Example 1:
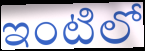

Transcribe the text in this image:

ఇంటిలో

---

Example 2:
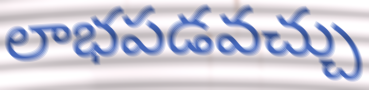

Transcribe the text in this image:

లాభపడవచ్చు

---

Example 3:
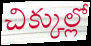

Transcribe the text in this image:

చిక్కుల్లో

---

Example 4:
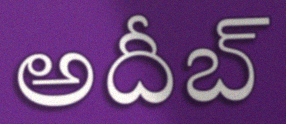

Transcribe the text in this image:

అదీబ్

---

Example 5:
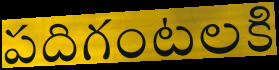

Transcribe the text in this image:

పదిగంటలకి